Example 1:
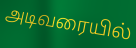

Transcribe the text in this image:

அடிவரையில்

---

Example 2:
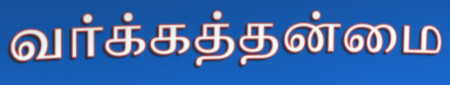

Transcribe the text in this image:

வர்க்கத்தன்மை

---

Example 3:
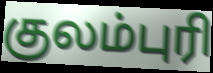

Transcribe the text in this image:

குலம்புரி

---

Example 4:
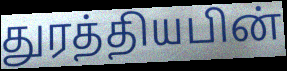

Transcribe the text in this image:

துரத்தியபின்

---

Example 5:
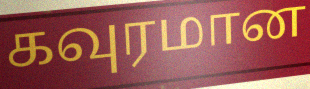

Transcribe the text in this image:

கவுரமான